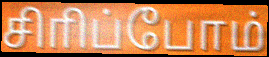
சிரிப்போம்